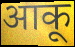
आकू